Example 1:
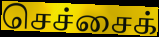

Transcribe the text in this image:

செச்சைக்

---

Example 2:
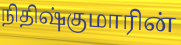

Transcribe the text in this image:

நிதிஷ்குமாரின்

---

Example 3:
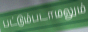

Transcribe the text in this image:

பட்டும்படாமலும்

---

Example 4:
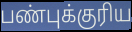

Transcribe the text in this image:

பண்புக்குரிய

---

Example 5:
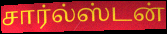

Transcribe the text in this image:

சார்ல்ஸ்டன்